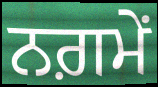
ਨਗ਼ਮੇਂ